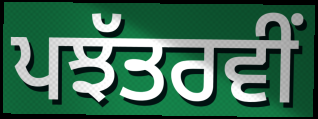
ਪਝੱਤਰਵੀਂ